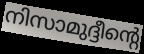
നിസാമുദ്ദീന്റെ